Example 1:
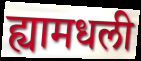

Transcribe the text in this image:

ह्यामधली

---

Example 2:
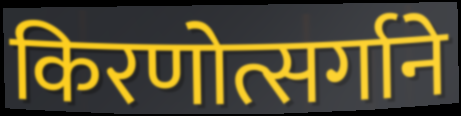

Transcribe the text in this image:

किरणोत्सर्गाने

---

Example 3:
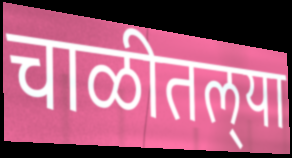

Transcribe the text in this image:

चाळीतल्या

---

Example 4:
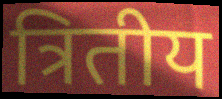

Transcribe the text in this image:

त्रितीय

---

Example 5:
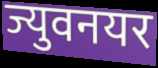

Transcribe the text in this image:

ज्युवनयर